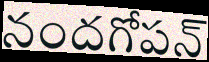
నందగోపన్